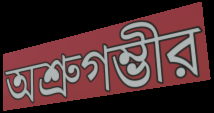
অশ্রুগম্ভীর